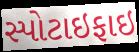
સ્પોટાઇફાઇ